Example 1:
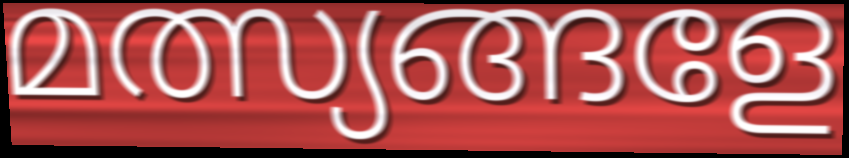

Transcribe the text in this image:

മത്സ്യങ്ങളേ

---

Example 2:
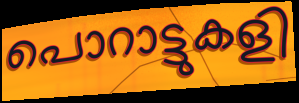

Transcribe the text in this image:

പൊറാട്ടുകളി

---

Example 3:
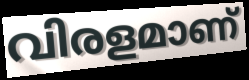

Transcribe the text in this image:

വിരളമാണ്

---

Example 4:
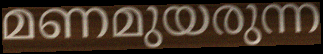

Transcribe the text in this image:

മണമുയരുന്ന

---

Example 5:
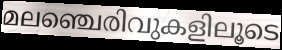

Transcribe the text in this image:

മലഞ്ചെരിവുകളിലൂടെ